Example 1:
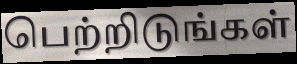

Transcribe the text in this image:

பெற்றிடுங்கள்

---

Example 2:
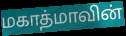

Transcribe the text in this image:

மகாத்மாவின்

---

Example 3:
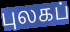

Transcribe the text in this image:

புலகப்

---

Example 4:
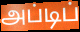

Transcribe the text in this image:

அப்டிப்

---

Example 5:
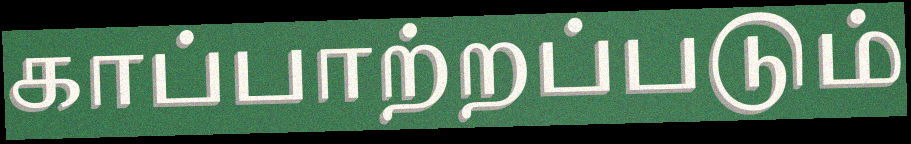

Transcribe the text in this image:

காப்பாற்றப்படும்